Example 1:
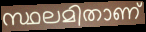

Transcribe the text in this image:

സ്ഥലമിതാണ്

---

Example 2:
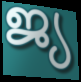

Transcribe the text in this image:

ജ്യ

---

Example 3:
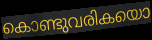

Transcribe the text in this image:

കൊണ്ടുവരികയൊ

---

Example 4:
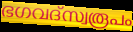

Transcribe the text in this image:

ഭഗവദ്സ്വരൂപം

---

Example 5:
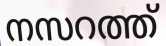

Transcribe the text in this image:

നസറത്ത്